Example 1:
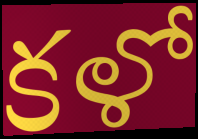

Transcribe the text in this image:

కళో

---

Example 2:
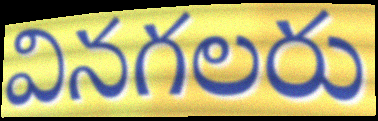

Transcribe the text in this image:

వినగలరు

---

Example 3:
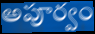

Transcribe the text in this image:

అపూర్వం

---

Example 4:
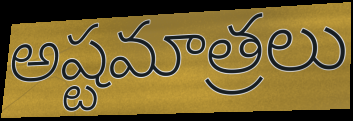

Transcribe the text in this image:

అష్టమాత్రలు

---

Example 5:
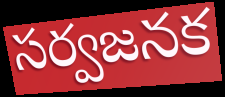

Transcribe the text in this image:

సర్వజనక